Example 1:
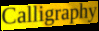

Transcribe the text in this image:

Calligraphy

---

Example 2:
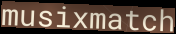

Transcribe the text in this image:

musixmatch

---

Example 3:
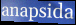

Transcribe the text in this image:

anapsida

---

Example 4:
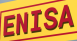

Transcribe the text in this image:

ENISA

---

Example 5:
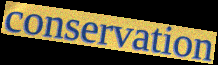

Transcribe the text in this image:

conservation